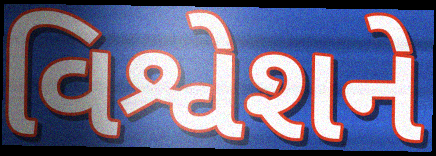
વિશ્વેશને